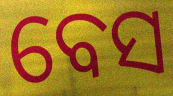
ବେସ